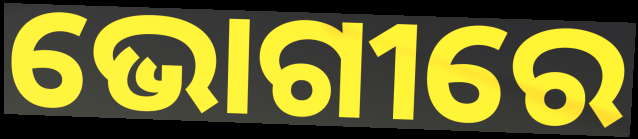
ଭୋଗୀରେ